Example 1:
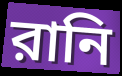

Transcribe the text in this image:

রানি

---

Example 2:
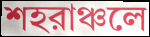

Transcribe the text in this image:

শহরাঞ্চলে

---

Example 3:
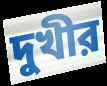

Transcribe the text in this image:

দুখীর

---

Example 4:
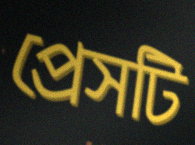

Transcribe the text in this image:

প্রেসটি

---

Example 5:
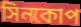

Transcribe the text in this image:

সিনকোপ